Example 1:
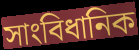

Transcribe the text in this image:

সাংবিধানিক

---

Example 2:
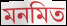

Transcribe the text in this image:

মনমিত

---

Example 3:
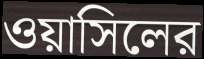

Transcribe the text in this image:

ওয়াসিলের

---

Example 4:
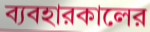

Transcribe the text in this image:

ব্যবহারকালের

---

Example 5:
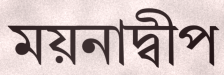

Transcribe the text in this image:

ময়নাদ্বীপ